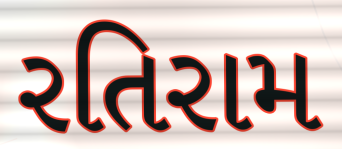
રતિરામ